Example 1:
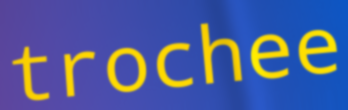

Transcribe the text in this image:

trochee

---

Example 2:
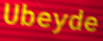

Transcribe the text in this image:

Ubeyde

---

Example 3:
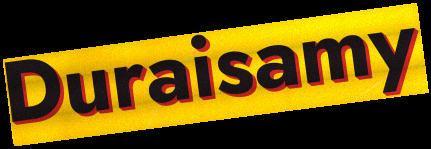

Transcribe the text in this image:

Duraisamy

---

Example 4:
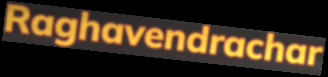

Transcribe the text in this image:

Raghavendrachar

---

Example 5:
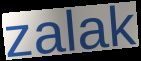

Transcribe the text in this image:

zalak